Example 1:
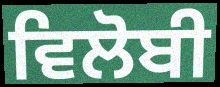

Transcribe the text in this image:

ਵਿਲੋਬੀ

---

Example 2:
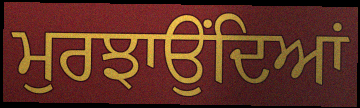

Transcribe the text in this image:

ਮੁਰਝਾਉਂਦਿਆਂ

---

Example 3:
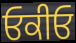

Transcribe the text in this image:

ਓਕੀਓ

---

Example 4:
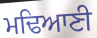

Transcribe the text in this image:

ਮਢਿਆਣੀ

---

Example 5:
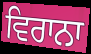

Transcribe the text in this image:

ਵਿਰਾਨਾ